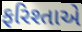
ફરિશ્તાએ